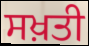
ਸਖ਼ਤੀ